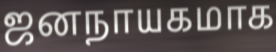
ஜனநாயகமாக